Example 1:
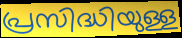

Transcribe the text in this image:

പ്രസിദ്ധിയുള്ള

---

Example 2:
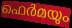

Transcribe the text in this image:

ഫെർമയും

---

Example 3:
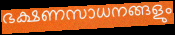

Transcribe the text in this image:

ഭക്ഷണസാധനങ്ങളും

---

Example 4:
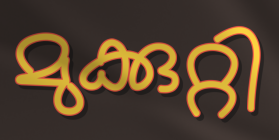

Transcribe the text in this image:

മുക്കുറ്റി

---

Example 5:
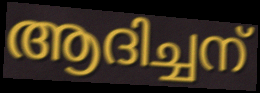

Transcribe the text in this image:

ആദിച്ചന്